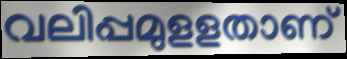
വലിപ്പമുളളതാണ്